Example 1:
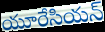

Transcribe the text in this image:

యూరేసియన్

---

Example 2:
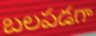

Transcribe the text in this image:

బలపడగా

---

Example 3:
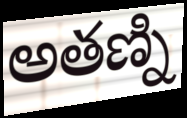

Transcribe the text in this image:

అతణ్ని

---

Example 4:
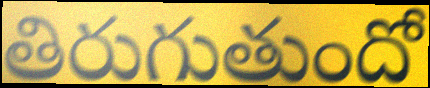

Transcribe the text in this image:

తిరుగుతుందో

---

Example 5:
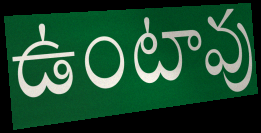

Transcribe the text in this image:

ఉంటావు